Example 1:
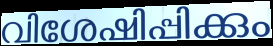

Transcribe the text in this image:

വിശേഷിപ്പിക്കും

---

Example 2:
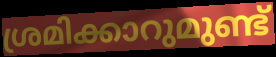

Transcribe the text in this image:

ശ്രമിക്കാറുമുണ്ട്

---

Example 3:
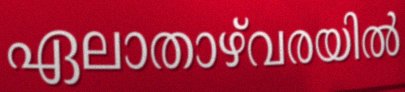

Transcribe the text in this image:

ഏലാതാഴ്‌വരയിൽ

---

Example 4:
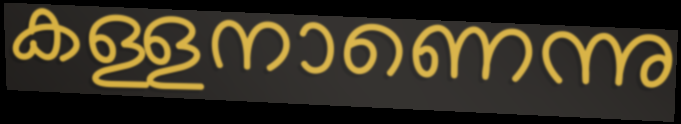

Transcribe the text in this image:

കള്ളനാണെന്നു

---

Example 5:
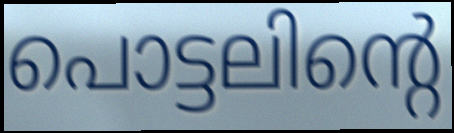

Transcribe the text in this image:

പൊട്ടലിന്റെ